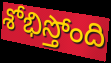
శోభిస్తోంది